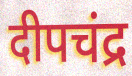
दीपचंद्र